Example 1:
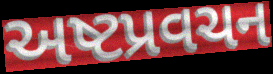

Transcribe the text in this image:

અષ્ટપ્રવચન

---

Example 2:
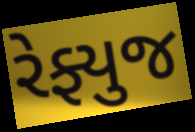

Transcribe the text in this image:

રેફ્યુજ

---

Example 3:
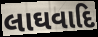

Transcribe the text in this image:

લાઘવાદિ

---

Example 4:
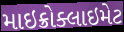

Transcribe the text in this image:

માઇક્રોક્લાઇમેટ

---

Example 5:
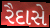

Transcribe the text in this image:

રૈદાસે